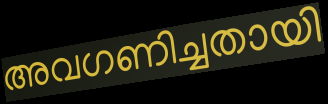
അവഗണിച്ചതായി